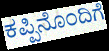
ಕಪ್ಪಿನೊಂದಿಗೆ